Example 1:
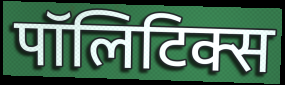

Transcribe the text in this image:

पॉलिटिक्स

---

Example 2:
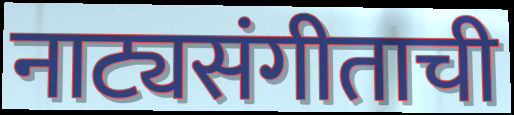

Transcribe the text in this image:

नाट्यसंगीताची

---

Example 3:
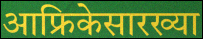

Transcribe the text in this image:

आफ्रिकेसारख्या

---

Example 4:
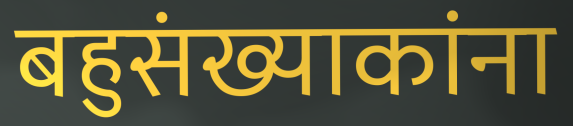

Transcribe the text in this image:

बहुसंख्याकांना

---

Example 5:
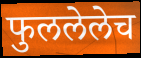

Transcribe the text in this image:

फुललेलेच